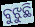
ବୁଝୁଛି